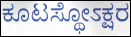
ಕೂಟಸ್ಥೋಽಕ್ಷರ